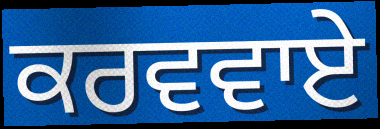
ਕਰਵਵਾਏ